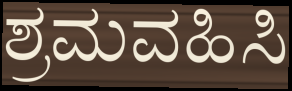
ಶ್ರಮವಹಿಸಿ